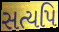
સત્યપિ